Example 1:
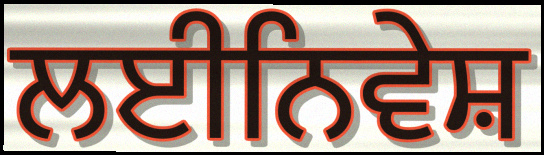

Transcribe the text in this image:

ਲਈਨਿਵੇਸ਼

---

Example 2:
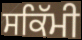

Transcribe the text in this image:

ਸਕਿੱਮੀ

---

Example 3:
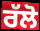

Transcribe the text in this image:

ਰੱਲੋ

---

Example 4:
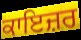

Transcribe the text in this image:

ਕਾਇਜ਼ਰ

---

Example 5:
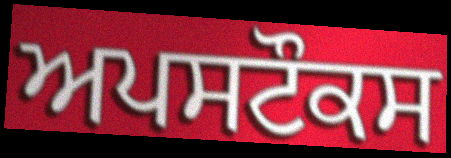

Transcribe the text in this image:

ਅਪਸਟੌਕਸ